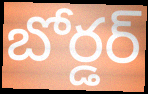
బోర్డర్